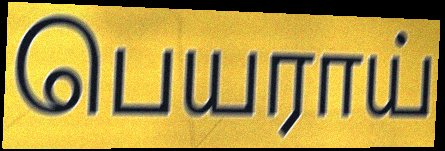
பெயராய்